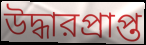
উদ্ধারপ্রাপ্ত